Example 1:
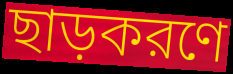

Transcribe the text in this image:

ছাড়করণে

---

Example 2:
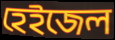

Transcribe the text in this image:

হেইজেল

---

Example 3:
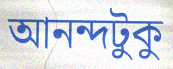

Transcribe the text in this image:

আনন্দটুকু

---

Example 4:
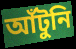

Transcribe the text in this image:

আঁটুনি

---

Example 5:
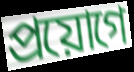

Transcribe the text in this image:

প্রয়োগে